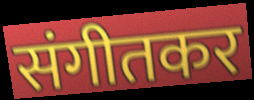
संगीतकर